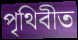
পৃথিবীত